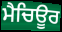
ਮੈਚਿਊਰ